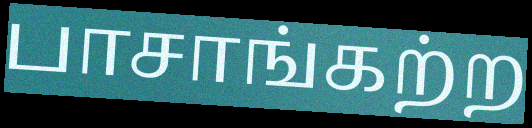
பாசாங்கற்ற